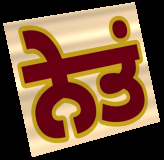
ਨੇਤਂ